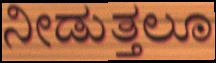
ನೀಡುತ್ತಲೂ